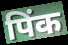
पिंक